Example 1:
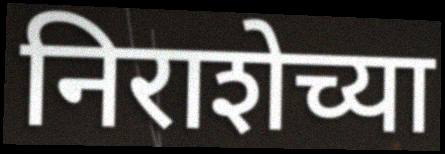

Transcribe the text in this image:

निराशेच्या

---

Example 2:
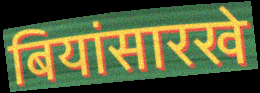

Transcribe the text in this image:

बियांसारखे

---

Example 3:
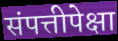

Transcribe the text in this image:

संपत्तीपेक्षा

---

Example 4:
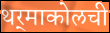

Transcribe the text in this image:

थर्माकोलची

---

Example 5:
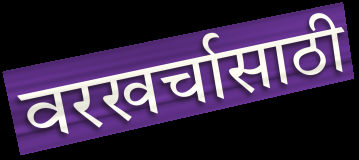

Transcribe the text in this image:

वरखर्चासाठी